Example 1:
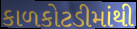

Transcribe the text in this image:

કાળકોટડીમાંથી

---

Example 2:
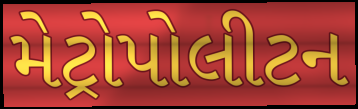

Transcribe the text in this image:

મેટ્રોપોલીટન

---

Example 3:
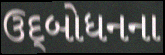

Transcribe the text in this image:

ઉદ્‌બોધનના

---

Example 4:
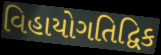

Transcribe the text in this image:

વિહાયોગતિદ્વિક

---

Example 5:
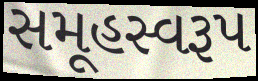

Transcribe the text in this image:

સમૂહસ્વરૂપ